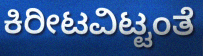
ಕಿರೀಟವಿಟ್ಟಂತೆ